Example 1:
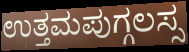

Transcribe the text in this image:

ಉತ್ತಮಪುಗ್ಗಲಸ್ಸ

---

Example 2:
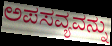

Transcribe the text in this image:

ಅಪಸವ್ಯವನ್ನು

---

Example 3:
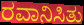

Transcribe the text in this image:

ರವಾನಿಸಿತು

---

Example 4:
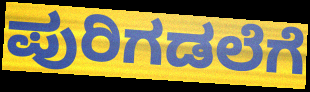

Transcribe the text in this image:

ಪುರಿಗಡಲೆಗೆ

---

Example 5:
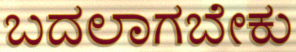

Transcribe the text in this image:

ಬದಲಾಗಬೇಕು